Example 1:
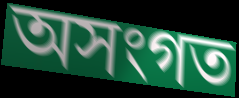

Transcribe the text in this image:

অসংগত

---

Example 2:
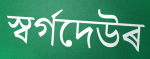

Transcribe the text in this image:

স্বৰ্গদেউৰ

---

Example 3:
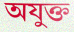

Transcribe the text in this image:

অযুক্ত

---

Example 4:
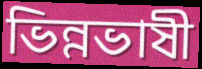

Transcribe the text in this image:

ভিন্নভাষী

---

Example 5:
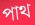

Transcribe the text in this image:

পাথ